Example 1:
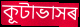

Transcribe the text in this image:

কূটাভাসৰ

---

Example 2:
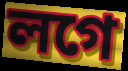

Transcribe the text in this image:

লগে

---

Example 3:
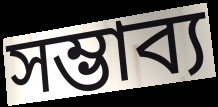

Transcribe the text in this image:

সম্ভাব্য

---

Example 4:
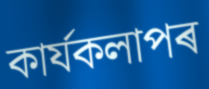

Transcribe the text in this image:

কাৰ্যকলাপৰ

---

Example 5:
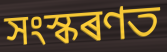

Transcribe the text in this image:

সংস্কৰণত